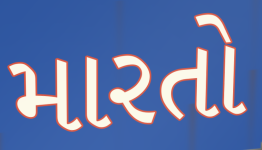
મારતો